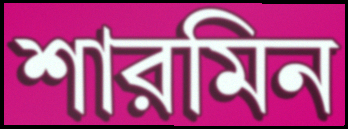
শারমিন